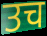
उच